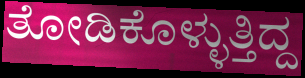
ತೋಡಿಕೊಳ್ಳುತ್ತಿದ್ದ